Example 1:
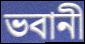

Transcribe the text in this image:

ভবানী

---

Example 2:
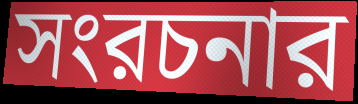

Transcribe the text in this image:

সংরচনার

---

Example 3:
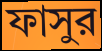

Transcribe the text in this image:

ফাসুর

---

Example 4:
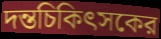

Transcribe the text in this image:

দন্তচিকিৎসকের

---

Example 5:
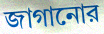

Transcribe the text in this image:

জাগানোর